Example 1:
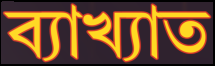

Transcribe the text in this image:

ব্যাখ্যাত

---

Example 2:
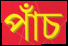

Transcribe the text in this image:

পাঁচ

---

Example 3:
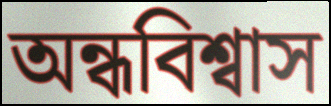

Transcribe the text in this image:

অন্ধবিশ্বাস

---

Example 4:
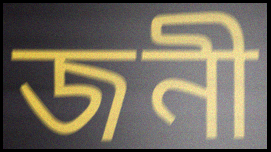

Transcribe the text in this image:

জনী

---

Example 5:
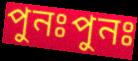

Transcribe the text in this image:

পুনঃপুনঃ